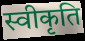
स्‍वीकृति